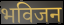
भविजन